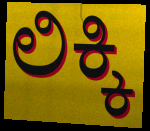
ಲಿಕ್ಕಿ